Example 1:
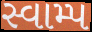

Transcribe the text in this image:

સ્વામ્પ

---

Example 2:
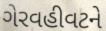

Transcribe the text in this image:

ગેરવહીવટને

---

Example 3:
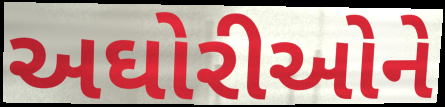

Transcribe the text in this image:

અઘોરીઓને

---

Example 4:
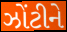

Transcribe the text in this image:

ઝોંટીને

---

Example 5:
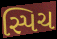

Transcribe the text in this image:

સ્પિચ